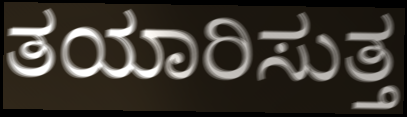
ತಯಾರಿಸುತ್ತ